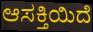
ಆಸಕ್ತಿಯಿದೆ